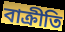
বাক্রীতি